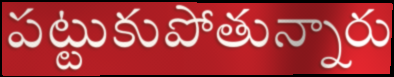
పట్టుకుపోతున్నారు